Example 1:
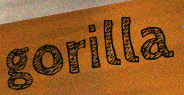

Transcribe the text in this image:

gorilla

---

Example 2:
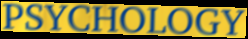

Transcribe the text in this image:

PSYCHOLOGY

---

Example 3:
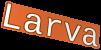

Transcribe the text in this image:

Larva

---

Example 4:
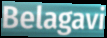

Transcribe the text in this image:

Belagavi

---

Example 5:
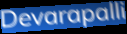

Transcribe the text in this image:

Devarapalli